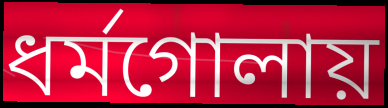
ধর্মগোলায়